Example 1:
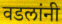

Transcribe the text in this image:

वडलांनी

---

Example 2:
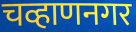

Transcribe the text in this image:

चव्हाणनगर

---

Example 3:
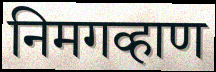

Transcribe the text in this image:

निमगव्हाण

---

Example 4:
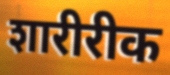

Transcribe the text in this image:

शारीरीक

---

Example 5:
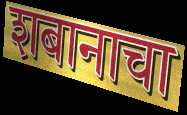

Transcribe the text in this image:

शबानाचा